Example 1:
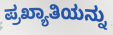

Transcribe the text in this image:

ಪ್ರಖ್ಯಾತಿಯನ್ನು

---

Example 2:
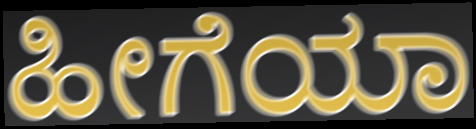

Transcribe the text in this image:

ಹೀಗೆಯಾ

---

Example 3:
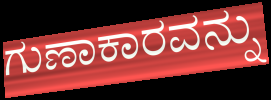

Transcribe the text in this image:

ಗುಣಾಕಾರವನ್ನು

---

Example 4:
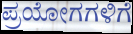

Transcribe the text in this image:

ಪ್ರಯೋಗಗಳಿಗೆ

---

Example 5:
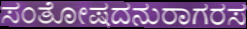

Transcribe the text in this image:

ಸಂತೋಷದನುರಾಗರಸ